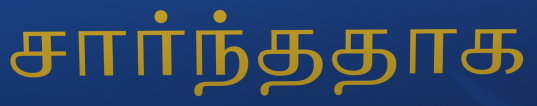
சார்ந்ததாக